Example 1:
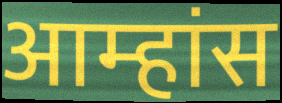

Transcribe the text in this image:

आम्हांस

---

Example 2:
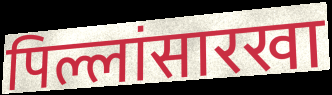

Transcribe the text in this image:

पिल्लांसारखा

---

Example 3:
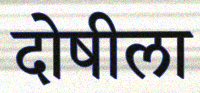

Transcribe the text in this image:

दोषीला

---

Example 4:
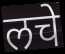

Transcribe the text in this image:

लचे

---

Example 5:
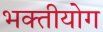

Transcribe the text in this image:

भक्तीयोग